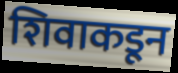
शिवाकडून